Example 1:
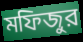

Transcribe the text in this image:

মফিজুর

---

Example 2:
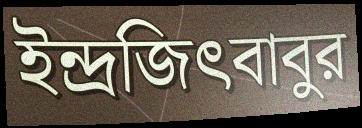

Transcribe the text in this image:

ইন্দ্রজিৎবাবুর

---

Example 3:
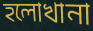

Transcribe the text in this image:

হলোখানা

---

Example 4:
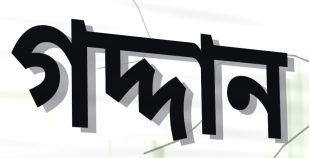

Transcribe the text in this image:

গদ্দান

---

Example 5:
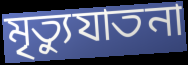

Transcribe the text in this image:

মৃত্যুযাতনা